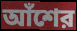
আঁশের